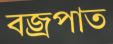
বজ্ৰপাত